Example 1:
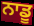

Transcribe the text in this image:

ਨਾਡੂ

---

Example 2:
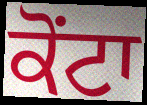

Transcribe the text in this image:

ਕੋਂਟਾ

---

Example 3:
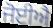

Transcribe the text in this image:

ਜੋਈਐ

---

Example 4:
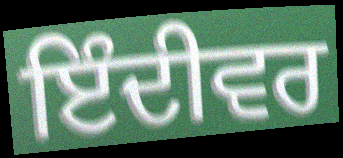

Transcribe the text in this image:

ਇੰਦੀਵਰ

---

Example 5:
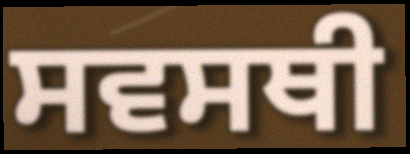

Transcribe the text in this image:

ਸਵਸਥੀ